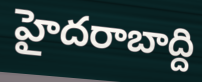
హైదరాబాద్ది